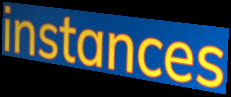
instances